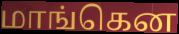
மாங்கென